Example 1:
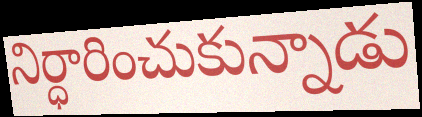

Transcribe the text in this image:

నిర్ధారించుకున్నాడు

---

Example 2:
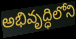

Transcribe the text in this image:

అభివృద్ధిలోని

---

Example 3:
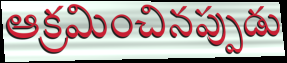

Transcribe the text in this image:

ఆక్రమించినప్పుడు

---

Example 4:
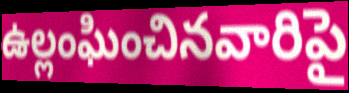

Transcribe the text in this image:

ఉల్లంఘించినవారిపై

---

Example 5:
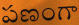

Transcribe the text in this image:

పణంగా